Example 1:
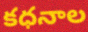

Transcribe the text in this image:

కధనాల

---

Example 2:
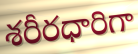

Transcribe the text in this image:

శరీరధారిగా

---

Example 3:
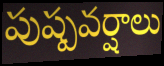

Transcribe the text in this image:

పుష్పవర్షాలు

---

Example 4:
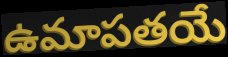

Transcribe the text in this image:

ఉమాపతయే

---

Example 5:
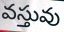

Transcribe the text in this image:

వస్తువు